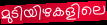
മുടിയിഴകളിലെ